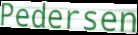
Pedersen